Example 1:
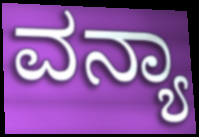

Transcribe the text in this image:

ವನ್ಯಾ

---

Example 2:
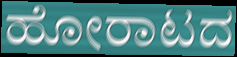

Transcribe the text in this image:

ಹೋರಾಟದ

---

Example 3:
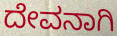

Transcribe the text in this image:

ದೇವನಾಗಿ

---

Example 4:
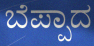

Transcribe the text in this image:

ಬೆಪ್ಪಾದ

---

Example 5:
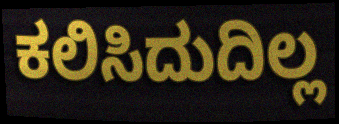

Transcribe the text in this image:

ಕಲಿಸಿದುದಿಲ್ಲ